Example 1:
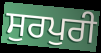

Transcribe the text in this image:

ਸੁਰਪੁਰੀ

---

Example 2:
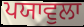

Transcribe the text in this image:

ਪਯਾਵੁਲਾ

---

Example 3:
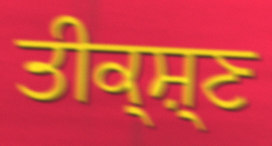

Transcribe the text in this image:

ਤੀਕ੍ਸ਼੍ਣ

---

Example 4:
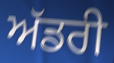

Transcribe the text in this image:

ਅੱਡਰੀ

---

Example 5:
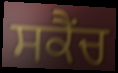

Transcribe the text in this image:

ਸਕੈਂਚ